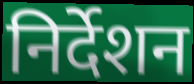
निर्देशन